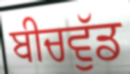
ਬੀਚਵੁੱਡ